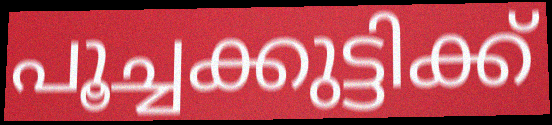
പൂച്ചക്കുട്ടിക്ക്